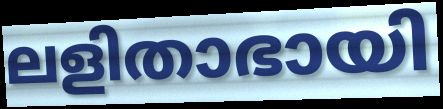
ലളിതാഭായി